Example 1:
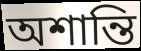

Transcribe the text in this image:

অশান্তি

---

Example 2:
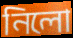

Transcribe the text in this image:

নিলো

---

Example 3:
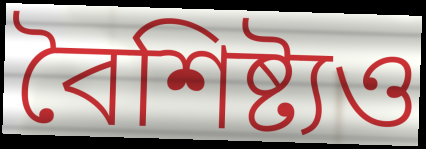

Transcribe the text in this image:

বৈশিষ্ট্যও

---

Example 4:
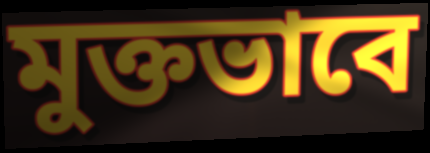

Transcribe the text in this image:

মুক্তভাবে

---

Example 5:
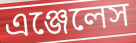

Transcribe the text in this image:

এঞ্জেলেস